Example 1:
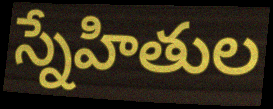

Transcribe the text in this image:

స్నేహితుల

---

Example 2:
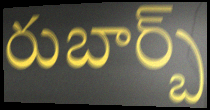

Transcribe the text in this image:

రుబార్బ్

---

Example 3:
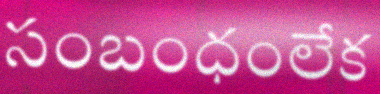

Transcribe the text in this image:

సంబంధంలేక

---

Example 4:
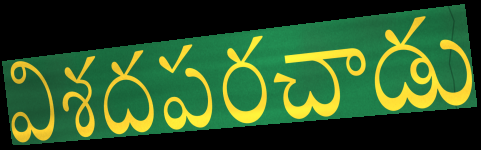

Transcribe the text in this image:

విశదపరచాడు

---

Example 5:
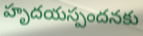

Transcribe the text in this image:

హృదయస్పందనకు